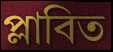
প্লাবিত